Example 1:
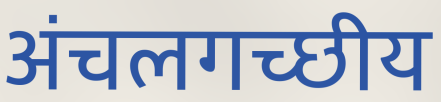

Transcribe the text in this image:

अंचलगच्छीय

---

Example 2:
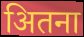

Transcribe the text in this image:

अितना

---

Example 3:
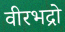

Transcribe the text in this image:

वीरभद्रो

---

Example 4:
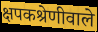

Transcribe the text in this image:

क्षपकश्रेणीवाले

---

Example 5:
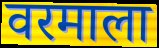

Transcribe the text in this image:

वरमाला